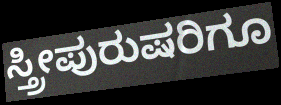
ಸ್ತ್ರೀಪುರುಷರಿಗೂ